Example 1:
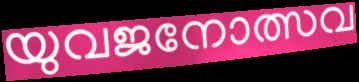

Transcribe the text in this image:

യുവജനോത്സവ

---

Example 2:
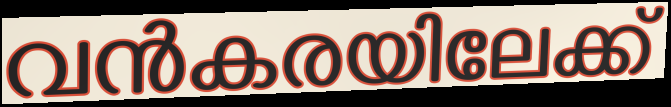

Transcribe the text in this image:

വൻകരയിലേക്ക്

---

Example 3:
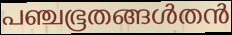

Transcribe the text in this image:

പഞ്ചഭൂതങ്ങൾതൻ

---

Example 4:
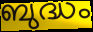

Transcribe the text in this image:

ബുദ്ധം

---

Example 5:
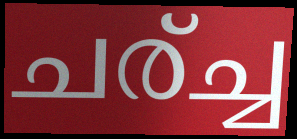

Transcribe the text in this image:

ചര്ച്ച